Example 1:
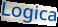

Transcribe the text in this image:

Logica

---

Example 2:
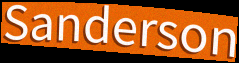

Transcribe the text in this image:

Sanderson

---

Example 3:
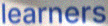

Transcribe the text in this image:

learners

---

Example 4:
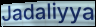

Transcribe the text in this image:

Jadaliyya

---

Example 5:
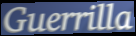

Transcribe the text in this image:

Guerrilla